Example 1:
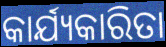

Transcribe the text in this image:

କାର୍ଯ୍ୟକାରିତା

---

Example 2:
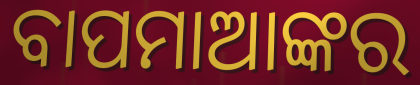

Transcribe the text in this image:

ବାପମାଆଙ୍କର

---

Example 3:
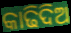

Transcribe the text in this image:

କାଢିଦିଅ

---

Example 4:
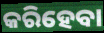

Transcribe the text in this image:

କରିହେବା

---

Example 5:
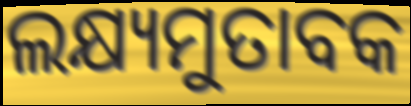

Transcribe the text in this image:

ଲକ୍ଷ୍ୟମୁତାବକ